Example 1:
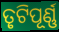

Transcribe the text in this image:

ତୃଟିପୂର୍ଣ୍ଣ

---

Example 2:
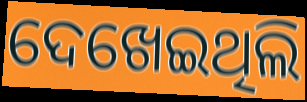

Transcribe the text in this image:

ଦେଖେଇଥିଲି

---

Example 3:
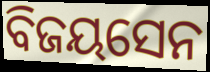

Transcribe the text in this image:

ବିଜୟସେନ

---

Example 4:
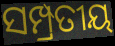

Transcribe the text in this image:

ସମ୍ପ୍ରତୀୟ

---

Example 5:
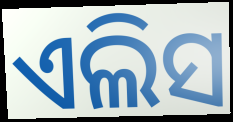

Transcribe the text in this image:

ଏଲିସ